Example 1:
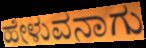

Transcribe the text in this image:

ಹೇಳುವನಾಗು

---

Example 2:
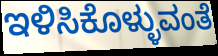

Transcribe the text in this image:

ಇಳಿಸಿಕೊಳ್ಳುವಂತೆ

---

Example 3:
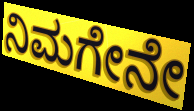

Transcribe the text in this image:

ನಿಮಗೇನೇ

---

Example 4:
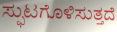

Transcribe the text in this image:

ಸ್ಫುಟಗೊಳಿಸುತ್ತದೆ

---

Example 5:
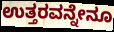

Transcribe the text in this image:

ಉತ್ತರವನ್ನೇನೂ